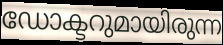
ഡോക്ടറുമായിരുന്ന